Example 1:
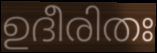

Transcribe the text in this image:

ഉദീരിതഃ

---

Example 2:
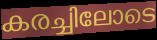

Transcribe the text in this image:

കരച്ചിലോടെ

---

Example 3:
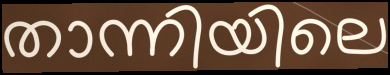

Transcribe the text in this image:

താന്നിയിലെ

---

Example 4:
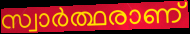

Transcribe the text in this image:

സ്വാർത്ഥരാണ്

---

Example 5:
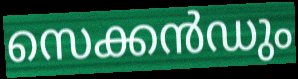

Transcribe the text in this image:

സെക്കൻഡും